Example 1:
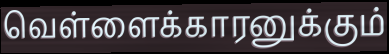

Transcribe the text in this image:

வெள்ளைக்காரனுக்கும்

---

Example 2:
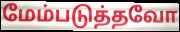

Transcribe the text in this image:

மேம்படுத்தவோ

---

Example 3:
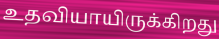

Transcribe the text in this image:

உதவியாயிருக்கிறது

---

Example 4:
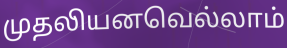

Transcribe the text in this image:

முதலியனவெல்லாம்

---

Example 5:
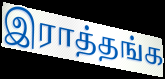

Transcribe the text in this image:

இராத்தங்க